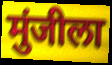
मुंजीला